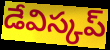
డేవిస్కప్